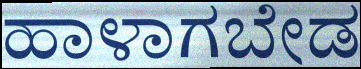
ಹಾಳಾಗಬೇಡ